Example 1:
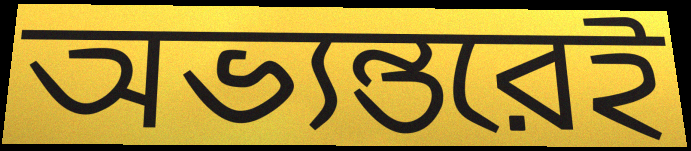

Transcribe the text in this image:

অভ্যন্তরেই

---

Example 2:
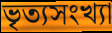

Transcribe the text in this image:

ভৃত্যসংখ্যা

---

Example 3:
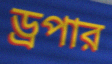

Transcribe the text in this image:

ড্রপার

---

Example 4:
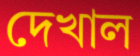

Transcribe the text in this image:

দেখাল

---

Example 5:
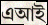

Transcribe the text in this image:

এআই